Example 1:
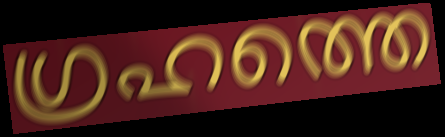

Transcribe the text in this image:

ഗ്രഹത്തെ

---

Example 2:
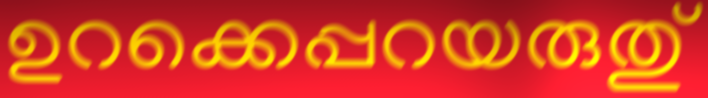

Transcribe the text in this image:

ഉറക്കെപ്പറയരുതു്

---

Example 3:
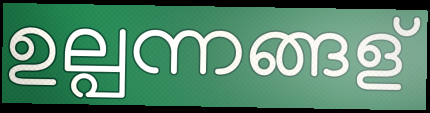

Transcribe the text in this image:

ഉല്പന്നങ്ങള്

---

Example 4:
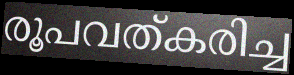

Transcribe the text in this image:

രൂപവത്കരിച്ച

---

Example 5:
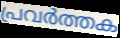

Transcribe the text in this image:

പ്രവർത്തക